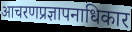
आचरणप्रज्ञापनाधिकार